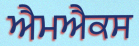
ਐਮਐਕਸ